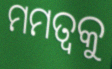
ମମତ୍ୱକୁ